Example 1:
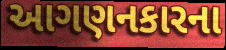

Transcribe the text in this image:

આગણનકારના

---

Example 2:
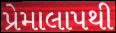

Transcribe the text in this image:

પ્રેમાલાપથી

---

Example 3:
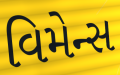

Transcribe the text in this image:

વિમેન્સ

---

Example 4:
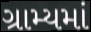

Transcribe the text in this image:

ગ્રામ્યમાં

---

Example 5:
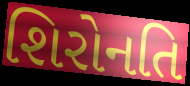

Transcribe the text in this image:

શિરોનતિ